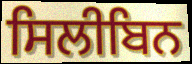
ਸਿਲੀਬਿਨ